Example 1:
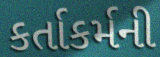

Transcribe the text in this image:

કર્તાકર્મની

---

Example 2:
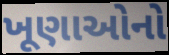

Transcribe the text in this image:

ખૂણાઓનો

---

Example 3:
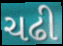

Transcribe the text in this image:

ચઢી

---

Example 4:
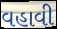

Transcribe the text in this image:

વહાવી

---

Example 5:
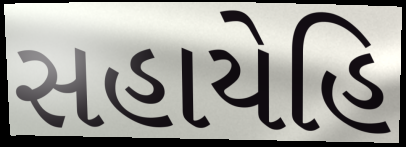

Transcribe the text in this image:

સહાયેહિ